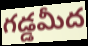
గడ్డమీద